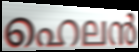
ഹെലൻ